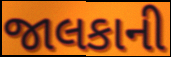
જાલકાની